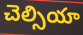
చెల్సియా